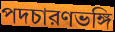
পদচারণভঙ্গি